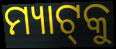
ମ୍ୟାଟ୍‌କୁ